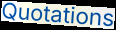
Quotations